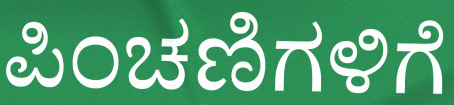
ಪಿಂಚಣಿಗಳಿಗೆ